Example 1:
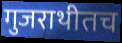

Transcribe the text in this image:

गुजराथीतच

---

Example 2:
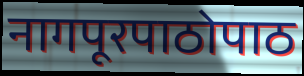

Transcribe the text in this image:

नागपूरपाठोपाठ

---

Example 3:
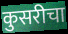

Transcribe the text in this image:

कुसरीचा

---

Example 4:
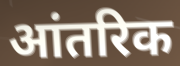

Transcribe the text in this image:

आंतरिक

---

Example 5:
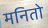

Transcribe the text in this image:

मनितो